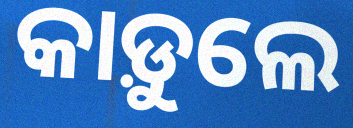
କାଡ଼ୁଲେ